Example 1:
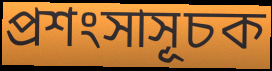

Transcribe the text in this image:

প্রশংসাসূচক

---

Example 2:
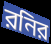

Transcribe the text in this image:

রনির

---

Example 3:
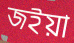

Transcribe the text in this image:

জইয়া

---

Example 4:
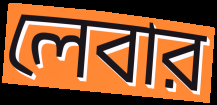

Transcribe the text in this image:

লেবার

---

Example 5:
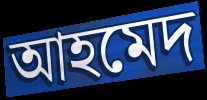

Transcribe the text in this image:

আহমেদ